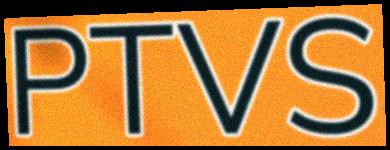
PTVS